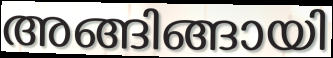
അങ്ങിങ്ങായി